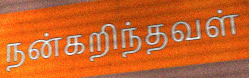
நன்கறிந்தவள்